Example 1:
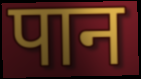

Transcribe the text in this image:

पान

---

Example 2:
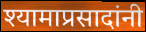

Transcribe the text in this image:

श्यामाप्रसादांनी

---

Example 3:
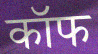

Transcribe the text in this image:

कॉफ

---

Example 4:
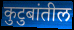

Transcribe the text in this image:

कुटुबांतील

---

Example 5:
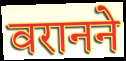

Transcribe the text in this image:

वरानने